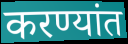
करण्यांत